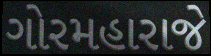
ગોરમહારાજે